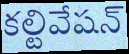
కల్టివేషన్